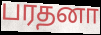
பரதனா